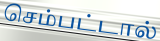
செம்பட்டால்